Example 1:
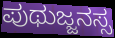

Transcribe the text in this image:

ಪುಥುಜ್ಜನಸ್ಸ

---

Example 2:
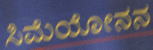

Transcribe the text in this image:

ಸಿಮೆಯೋನನ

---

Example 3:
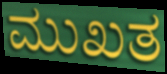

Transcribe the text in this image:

ಮುಖತ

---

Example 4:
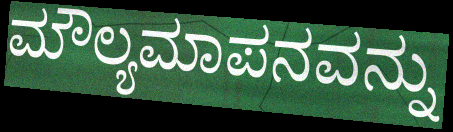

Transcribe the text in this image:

ಮೌಲ್ಯಮಾಪನವನ್ನು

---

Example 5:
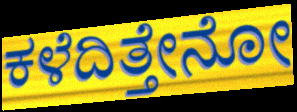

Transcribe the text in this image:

ಕಳೆದಿತ್ತೇನೋ